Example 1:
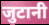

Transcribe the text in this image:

जुटानी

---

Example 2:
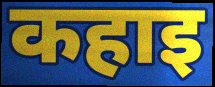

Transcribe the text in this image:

कहाइ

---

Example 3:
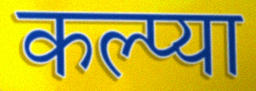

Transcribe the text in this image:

कल्प्या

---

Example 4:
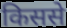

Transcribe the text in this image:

किससे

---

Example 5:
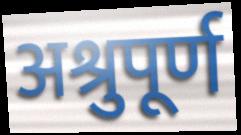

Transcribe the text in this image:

अश्रुपूर्ण